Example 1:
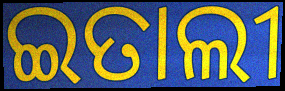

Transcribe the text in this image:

ଇତାଲୀ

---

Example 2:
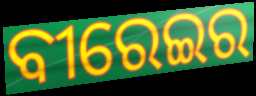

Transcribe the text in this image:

ବୀରେଇର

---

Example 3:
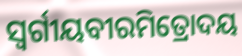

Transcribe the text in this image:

ସ୍ୱର୍ଗୀୟବୀରମିତ୍ରୋଦୟ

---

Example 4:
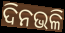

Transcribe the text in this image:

ଦିନଭଳି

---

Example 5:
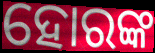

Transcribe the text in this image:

ହୋରଙ୍କ